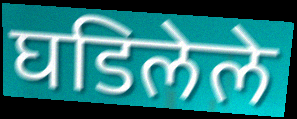
घडिलेले